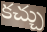
కచ్చు